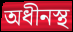
অধীনস্থ